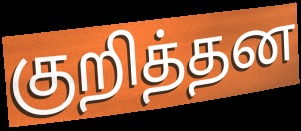
குறித்தன